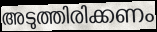
അടുത്തിരിക്കണം